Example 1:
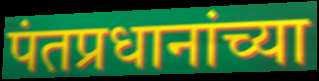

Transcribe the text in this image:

पंतप्रधानांच्या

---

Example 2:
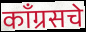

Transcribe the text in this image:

काँग्रसचे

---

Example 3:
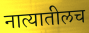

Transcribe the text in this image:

नात्यातीलच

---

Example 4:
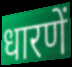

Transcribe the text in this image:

धारणें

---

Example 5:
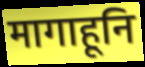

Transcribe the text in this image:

मागाहूनि